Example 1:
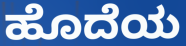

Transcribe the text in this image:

ಹೊದೆಯ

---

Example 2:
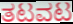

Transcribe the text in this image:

ತಟವಟ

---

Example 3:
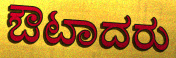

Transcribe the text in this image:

ಔಟಾದರು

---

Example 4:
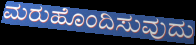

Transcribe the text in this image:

ಮರುಹೊಂದಿಸುವುದು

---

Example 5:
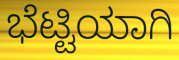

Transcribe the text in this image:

ಭೆಟ್ಟಿಯಾಗಿ